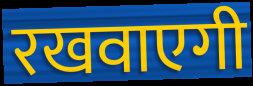
रखवाएगी